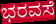
ಭರವಸೆ